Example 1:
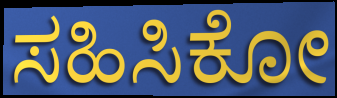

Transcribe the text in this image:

ಸಹಿಸಿಕೋ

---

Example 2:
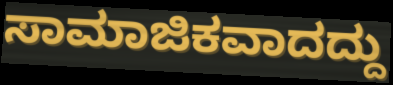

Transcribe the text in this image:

ಸಾಮಾಜಿಕವಾದದ್ದು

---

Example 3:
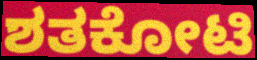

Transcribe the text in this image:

ಶತಕೋಟಿ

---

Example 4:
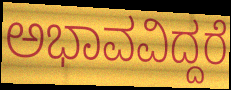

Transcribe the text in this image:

ಅಭಾವವಿದ್ದರೆ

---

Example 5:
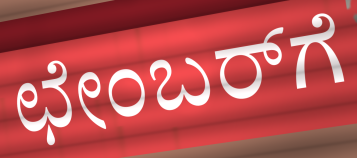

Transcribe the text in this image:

ಛೇಂಬರ್‌ಗೆ